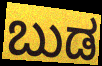
ಬುಡ